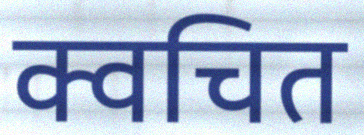
क्वचित